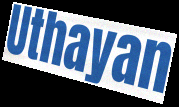
Uthayan